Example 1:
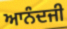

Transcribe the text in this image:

ਆਨੰਦਜੀ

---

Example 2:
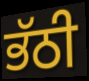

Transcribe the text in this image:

ਭੱਠੀ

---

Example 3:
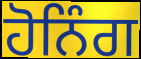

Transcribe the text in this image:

ਹੋਨਿੰਗ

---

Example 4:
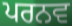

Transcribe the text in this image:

ਪਰਨਵ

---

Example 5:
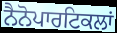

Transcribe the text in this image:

ਨੈਨੋਪਾਰਟਿਕਲਾਂ